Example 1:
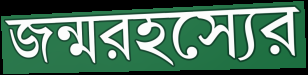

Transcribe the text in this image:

জন্মরহস্যের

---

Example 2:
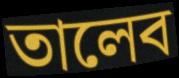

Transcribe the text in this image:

তালেব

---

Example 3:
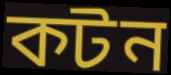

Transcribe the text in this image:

কটন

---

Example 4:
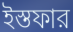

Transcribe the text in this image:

ইস্তফার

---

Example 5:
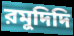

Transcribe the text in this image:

রমুদিদি